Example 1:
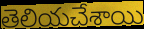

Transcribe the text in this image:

తెలియచేశాయి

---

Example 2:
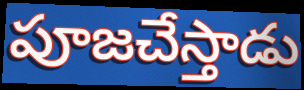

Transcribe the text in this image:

పూజచేస్తాడు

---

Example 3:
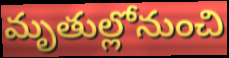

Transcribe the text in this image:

మృతుల్లోనుంచి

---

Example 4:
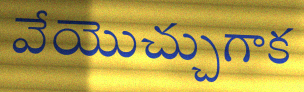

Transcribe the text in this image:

వేయొచ్చుగాక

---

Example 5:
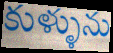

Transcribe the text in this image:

కుళ్ళును